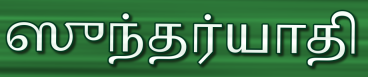
ஸுந்தர்யாதி